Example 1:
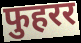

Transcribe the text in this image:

फुहरर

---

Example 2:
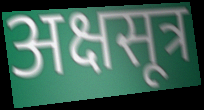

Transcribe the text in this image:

अक्षसूत्र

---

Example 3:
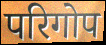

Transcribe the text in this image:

परिगोप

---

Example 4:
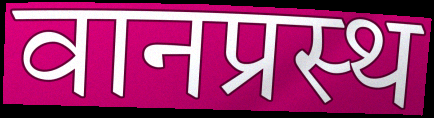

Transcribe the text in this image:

वानप्रस्थ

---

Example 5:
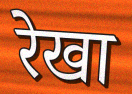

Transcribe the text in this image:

रेखा